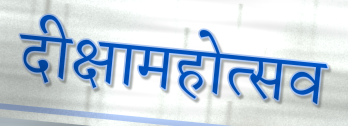
दीक्षामहोत्सव